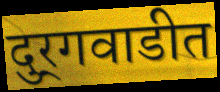
दुर्गवाडीत